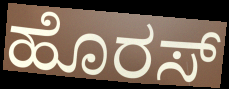
ಹೊರಸ್